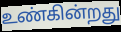
உண்கின்றது